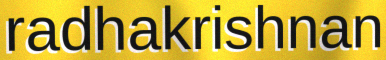
radhakrishnan